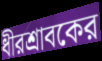
ধীরশ্রাবকের